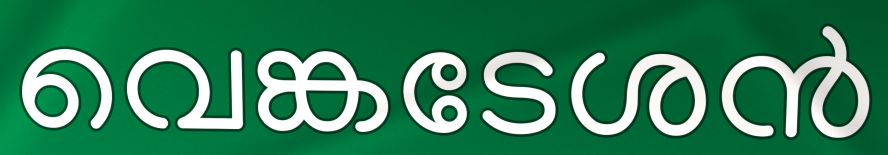
വെങ്കടേശൻ